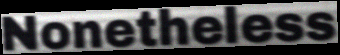
Nonetheless